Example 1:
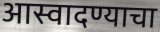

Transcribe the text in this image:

आस्वादण्याचा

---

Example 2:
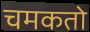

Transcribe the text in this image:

चमकतो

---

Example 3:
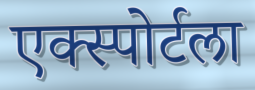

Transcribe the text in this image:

एक्स्पोर्टला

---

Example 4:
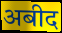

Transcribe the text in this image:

अबीद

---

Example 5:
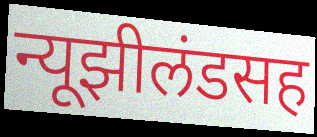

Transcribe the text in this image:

न्यूझीलंडसह